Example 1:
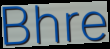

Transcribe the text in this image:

Bhre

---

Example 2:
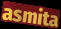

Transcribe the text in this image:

asmita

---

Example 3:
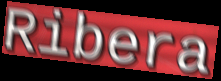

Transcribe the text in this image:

Ribera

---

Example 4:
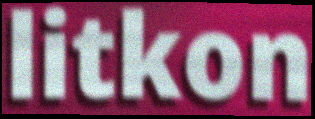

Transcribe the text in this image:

litkon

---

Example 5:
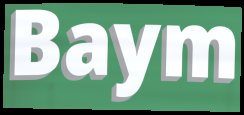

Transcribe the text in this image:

Baym